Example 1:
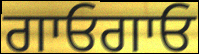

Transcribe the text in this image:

ਗਾਓਗਾਓ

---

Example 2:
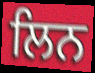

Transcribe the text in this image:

ਲਿਨ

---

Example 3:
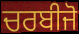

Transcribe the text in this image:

ਚਰਬੀਜੋ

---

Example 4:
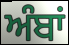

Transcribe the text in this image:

ਅੰਬਾਂ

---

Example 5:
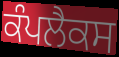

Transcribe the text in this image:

ਕੰਪਲੈਕਸ